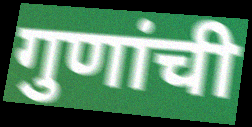
गुणांची